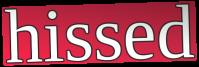
hissed